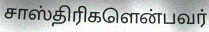
சாஸ்திரிகளென்பவர்